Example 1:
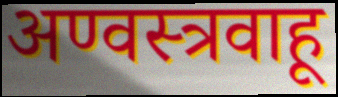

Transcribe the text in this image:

अण्वस्त्रवाहू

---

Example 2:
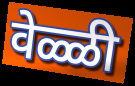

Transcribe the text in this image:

वेळ्ळी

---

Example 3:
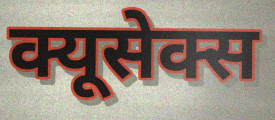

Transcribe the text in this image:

क्यूसेक्स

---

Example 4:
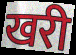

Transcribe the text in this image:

खरी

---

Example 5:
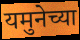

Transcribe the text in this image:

यमुनेच्या